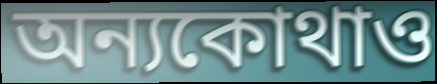
অন্যকোথাও